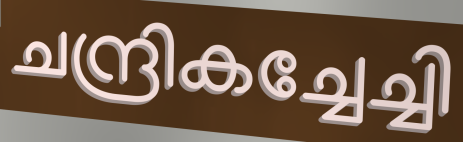
ചന്ദ്രികച്ചേച്ചി